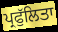
ਪ੍ਰਫੁੱਲਿਤਾ